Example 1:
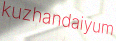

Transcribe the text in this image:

kuzhandaiyum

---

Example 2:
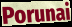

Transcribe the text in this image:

Porunai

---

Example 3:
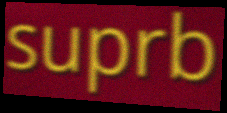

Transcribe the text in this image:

suprb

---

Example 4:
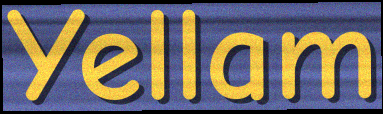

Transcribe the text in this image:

Yellam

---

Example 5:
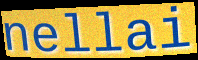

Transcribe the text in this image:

nellai